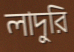
লাদুরি